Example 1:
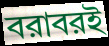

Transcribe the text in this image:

বরাবরই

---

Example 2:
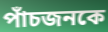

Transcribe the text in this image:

পাঁচজনকে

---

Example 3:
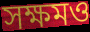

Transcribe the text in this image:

সক্ষমও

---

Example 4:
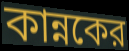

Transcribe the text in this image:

কান্নকের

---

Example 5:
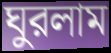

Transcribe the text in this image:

ঘুরলাম